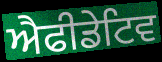
ਐਫੀਡੇਟਿਵ